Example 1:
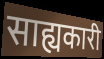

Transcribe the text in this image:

साह्यकारी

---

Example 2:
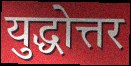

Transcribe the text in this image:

युद्धोत्तर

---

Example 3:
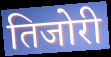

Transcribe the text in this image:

तिजोरी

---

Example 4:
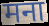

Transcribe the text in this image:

मना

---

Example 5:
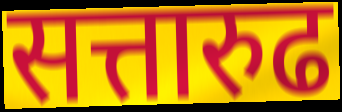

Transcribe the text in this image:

सत्तारुढ